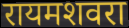
रायमशवरा